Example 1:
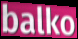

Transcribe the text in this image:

balko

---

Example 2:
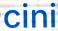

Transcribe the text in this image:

cini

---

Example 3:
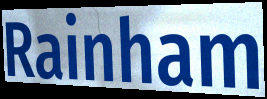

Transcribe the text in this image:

Rainham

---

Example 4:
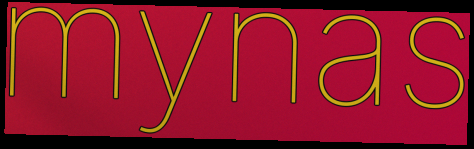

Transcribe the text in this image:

mynas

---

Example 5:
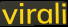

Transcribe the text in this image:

virali